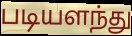
படியளந்து